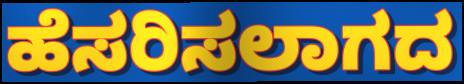
ಹೆಸರಿಸಲಾಗದ